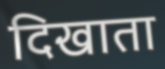
दिखाता